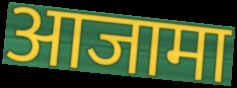
आजामा